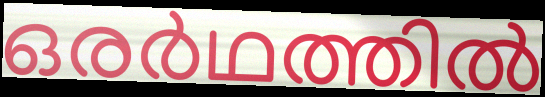
ഒരർഥത്തിൽ